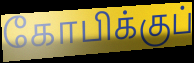
கோபிக்குப்